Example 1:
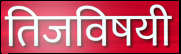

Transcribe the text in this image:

तिजविषयी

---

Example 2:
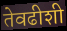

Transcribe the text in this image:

तेवढीशी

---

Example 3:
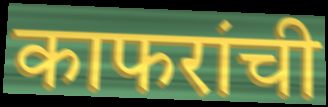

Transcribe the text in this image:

काफरांची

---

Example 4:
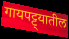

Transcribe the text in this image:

गायपट्ट्यातील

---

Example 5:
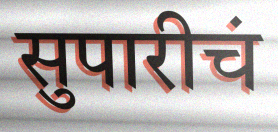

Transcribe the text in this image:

सुपारीचं